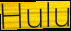
Hulu